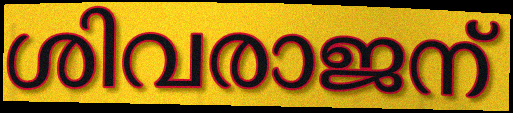
ശിവരാജന്